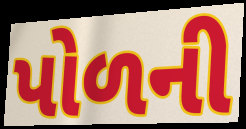
પોળની